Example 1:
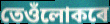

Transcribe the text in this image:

তেওঁলোকৰে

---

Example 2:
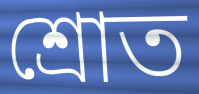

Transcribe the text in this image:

শ্ৰোত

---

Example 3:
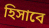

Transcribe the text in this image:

হিসাবে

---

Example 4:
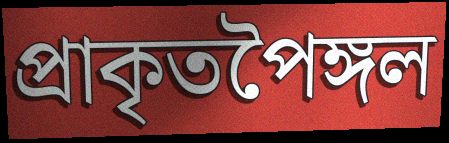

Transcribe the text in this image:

প্ৰাকৃতপৈঙ্গল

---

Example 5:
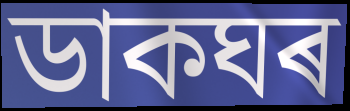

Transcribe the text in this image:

ডাকঘৰ